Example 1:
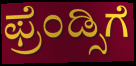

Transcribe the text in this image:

ಫ್ರೆಂಡ್ಸಿಗೆ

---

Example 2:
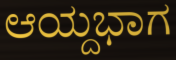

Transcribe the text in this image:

ಆಯ್ದಭಾಗ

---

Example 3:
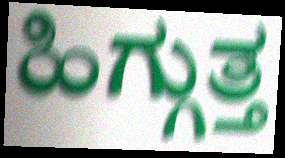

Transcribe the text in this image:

ಹಿಗ್ಗುತ್ತ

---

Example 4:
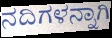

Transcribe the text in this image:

ನದಿಗಳನ್ನಾಗಿ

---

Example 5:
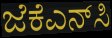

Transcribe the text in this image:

ಜೆಕೆಎನ್‌ಸಿ